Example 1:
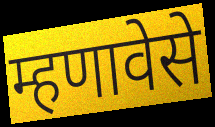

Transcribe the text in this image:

म्हणावेसे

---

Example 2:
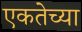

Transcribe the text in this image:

एकतेच्या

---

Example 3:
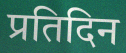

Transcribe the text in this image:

प्रतिदिन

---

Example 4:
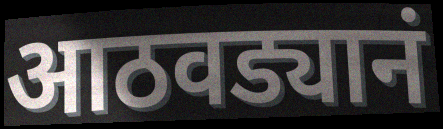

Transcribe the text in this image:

आठवड्यानं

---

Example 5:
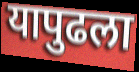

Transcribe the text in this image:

यापुढला